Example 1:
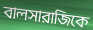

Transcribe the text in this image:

বালসারাজিকে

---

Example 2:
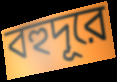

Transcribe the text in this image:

বহুদূরে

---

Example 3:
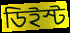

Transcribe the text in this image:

ডিইস্ট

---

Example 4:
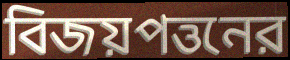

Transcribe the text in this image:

বিজয়পত্তনের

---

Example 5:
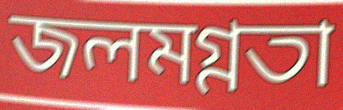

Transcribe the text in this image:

জলমগ্নতা